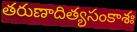
తరుణాదిత్యసంకాశః